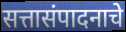
सत्तासंपादनाचे